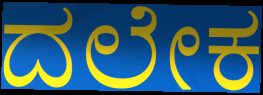
ದಲೇಕ